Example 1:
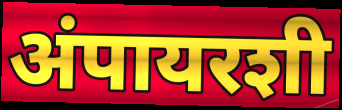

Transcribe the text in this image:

अंपायरशी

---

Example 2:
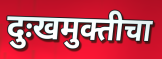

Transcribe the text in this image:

दुःखमुक्तीचा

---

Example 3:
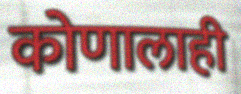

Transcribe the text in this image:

कोणालाही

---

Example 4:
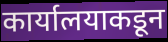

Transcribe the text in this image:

कार्यालयाकडून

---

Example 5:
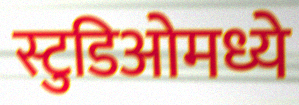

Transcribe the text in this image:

स्टुडिओमध्ये